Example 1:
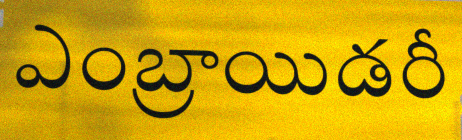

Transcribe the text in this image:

ఎంబ్రాయిడరీ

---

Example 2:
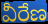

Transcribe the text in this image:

వీరేణ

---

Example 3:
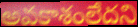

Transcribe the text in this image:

అవకాశంలేదని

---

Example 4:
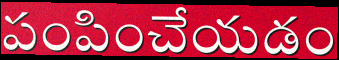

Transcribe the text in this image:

పంపించేయడం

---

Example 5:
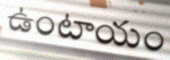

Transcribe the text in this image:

ఉంటాయం